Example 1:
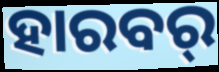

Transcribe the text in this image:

ହାରବର୍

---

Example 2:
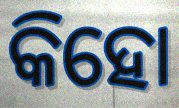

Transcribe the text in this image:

କିହୋ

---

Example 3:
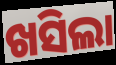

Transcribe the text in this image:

ଖସିଲା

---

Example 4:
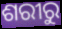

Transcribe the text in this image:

ଶରୀରୁ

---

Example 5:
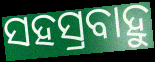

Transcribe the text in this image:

ସହସ୍ରବାହୁ